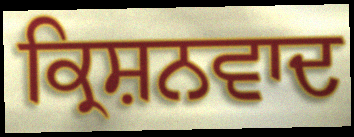
ਕ੍ਰਿਸ਼ਨਵਾਦ